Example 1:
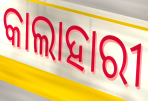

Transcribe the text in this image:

କାଲାହାରୀ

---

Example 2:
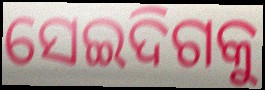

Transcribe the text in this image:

ସେଇଦିଗକୁ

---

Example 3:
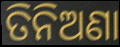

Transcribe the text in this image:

ତିନିଅଣା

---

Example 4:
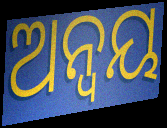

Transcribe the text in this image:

ଅନ୍ଵୟ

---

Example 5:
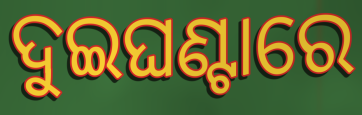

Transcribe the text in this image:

ଦୁଇଘଣ୍ଟାରେ